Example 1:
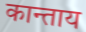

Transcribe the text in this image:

कान्ताय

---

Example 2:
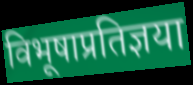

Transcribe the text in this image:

विभूषाप्रतिज्ञया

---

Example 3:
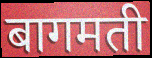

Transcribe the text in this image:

बागमती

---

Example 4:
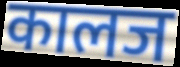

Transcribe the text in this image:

कालज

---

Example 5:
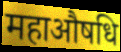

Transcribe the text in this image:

महाऔषधि